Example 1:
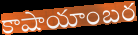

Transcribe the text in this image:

కాషాయాంబర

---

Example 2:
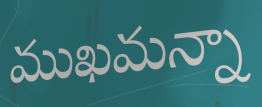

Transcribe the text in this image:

ముఖమన్నా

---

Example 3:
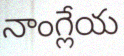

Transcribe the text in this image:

నాంగ్లేయ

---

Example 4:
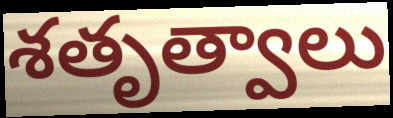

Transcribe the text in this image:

శతృత్వాలు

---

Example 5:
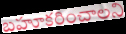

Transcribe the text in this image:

బహూకరించాలని